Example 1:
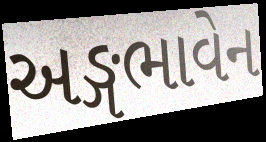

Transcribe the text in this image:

અઙ્ગભાવેન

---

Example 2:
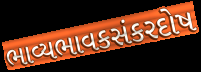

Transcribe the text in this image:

ભાવ્યભાવકસંકરદોષ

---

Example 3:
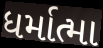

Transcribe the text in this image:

ધર્માત્મા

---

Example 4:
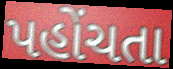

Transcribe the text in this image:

પહોંચતા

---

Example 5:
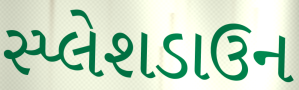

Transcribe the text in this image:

સ્પ્લેશડાઉન